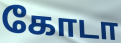
கோடா